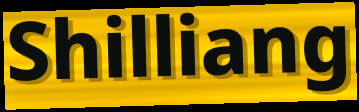
Shilliang